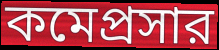
কমেপ্রসার